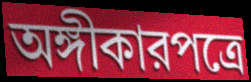
অঙ্গীকারপত্রে